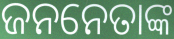
ଜନନେତାଙ୍କ